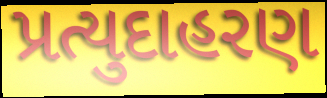
પ્રત્યુદાહરણ